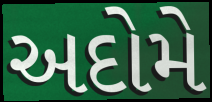
અદોમે